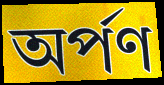
অর্পণ